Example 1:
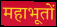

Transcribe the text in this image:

महाभूतों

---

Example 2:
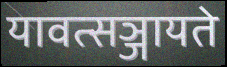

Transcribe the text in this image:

यावत्सञ्जायते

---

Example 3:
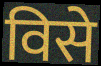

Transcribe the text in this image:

विसे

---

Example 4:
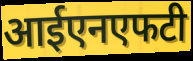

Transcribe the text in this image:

आईएनएफटी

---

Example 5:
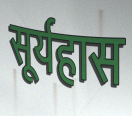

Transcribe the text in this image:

सूर्यहास